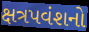
ક્ષત્રપવંશનો